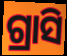
ଗ୍ରାସି